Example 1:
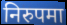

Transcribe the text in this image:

निरुपमा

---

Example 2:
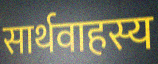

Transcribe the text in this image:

सार्थवाहस्य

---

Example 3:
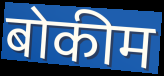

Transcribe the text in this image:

बोकीम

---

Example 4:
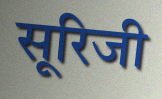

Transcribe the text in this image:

सूरिजी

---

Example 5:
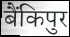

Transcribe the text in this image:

बैंकिपुर